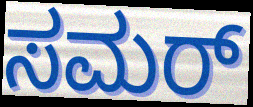
ಸಮರ್